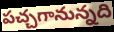
పచ్చగానున్నది